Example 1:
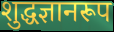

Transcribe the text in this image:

शुद्धज्ञानरूप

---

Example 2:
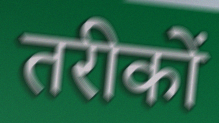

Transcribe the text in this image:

तरीकों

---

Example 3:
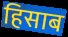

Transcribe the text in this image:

हिसाब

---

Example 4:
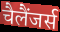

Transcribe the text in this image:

चैलैंजर्स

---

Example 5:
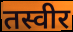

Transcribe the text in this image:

तस्वीर